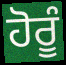
ਹੋਰੂੰ